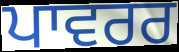
ਪਾਵਰਰ